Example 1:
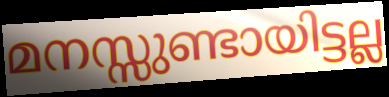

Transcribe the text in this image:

മനസ്സുണ്ടായിട്ടല്ല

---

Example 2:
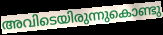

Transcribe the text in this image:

അവിടെയിരുന്നുകൊണ്ടു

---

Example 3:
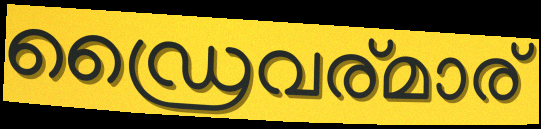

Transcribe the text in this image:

ഡ്രൈവര്മാര്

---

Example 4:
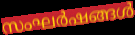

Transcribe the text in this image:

സംഘർഷങ്ങൾ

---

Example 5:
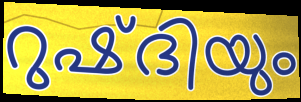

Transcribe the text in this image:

റുഷ്ദിയും